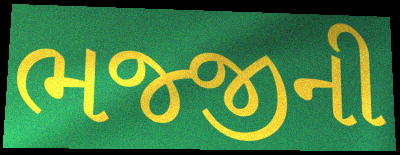
ભજ્જીની